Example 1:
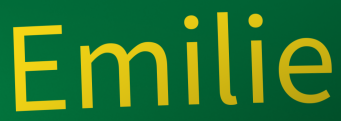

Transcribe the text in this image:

Emilie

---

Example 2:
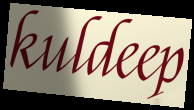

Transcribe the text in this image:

kuldeep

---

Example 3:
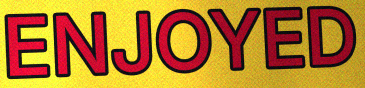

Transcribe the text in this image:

ENJOYED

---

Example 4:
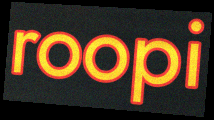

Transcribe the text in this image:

roopi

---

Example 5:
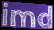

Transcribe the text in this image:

imd